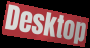
Desktop